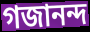
গজানন্দ